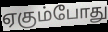
ஏகும்போது